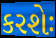
કરશેઃ